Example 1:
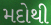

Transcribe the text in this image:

મદોથી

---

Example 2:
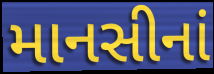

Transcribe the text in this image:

માનસીનાં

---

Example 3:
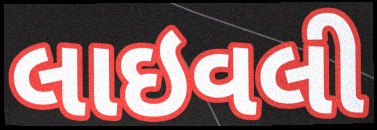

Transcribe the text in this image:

લાઇવલી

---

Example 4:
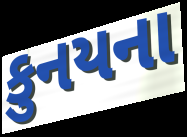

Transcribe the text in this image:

કુનયના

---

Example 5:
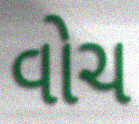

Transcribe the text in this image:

વોચ